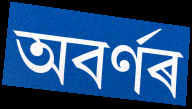
অবৰ্ণৰ